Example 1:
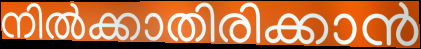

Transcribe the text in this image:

നിൽക്കാതിരിക്കാൻ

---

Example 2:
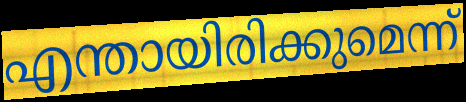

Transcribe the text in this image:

എന്തായിരിക്കുമെന്ന്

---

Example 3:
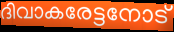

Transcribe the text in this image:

ദിവാകരേട്ടനോട്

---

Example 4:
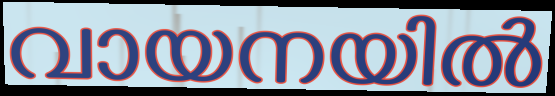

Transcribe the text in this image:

വായനയിൽ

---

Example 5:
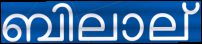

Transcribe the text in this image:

ബിലാല്